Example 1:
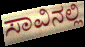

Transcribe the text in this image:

ಸಾವಿನಲ್ಲಿ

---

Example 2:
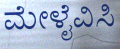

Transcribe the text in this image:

ಮೇಳೈವಿಸಿ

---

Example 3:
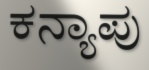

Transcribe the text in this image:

ಕನ್ಯಾಪು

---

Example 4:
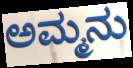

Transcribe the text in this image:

ಅಮ್ಮನು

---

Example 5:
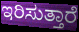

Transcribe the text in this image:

ಇರಿಸುತ್ತಾರೆ